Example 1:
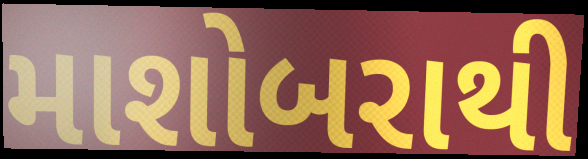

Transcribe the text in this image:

માશોબરાથી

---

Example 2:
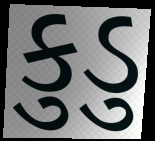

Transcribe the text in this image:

કુડુ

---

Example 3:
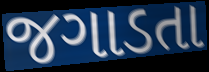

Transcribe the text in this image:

જગાડતા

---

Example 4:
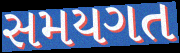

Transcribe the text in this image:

સમયગત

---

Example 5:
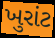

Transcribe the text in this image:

ખુરાંટ